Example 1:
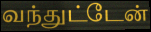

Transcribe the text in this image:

வந்துட்டேன்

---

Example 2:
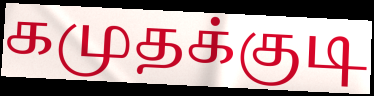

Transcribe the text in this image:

கமுதக்குடி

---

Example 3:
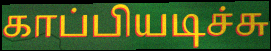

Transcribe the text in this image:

காப்பியடிச்சு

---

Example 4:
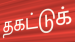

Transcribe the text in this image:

தகட்டுக்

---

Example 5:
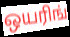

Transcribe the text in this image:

ஒயரிங்